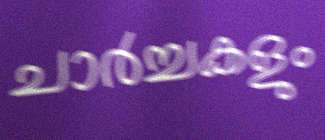
ചാർച്ചകളും